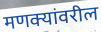
मणक्यांवरील